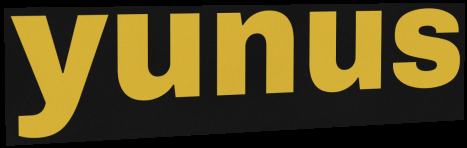
yunus